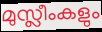
മുസ്ലീംകളും